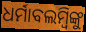
ଧର୍ମାବଲମ୍ବିଙ୍କୁ